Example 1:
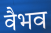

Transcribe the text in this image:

वैभव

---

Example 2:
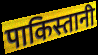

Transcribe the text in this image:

पाकिस्तानी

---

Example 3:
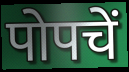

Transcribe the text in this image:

पोपचें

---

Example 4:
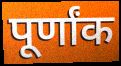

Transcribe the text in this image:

पूर्णांक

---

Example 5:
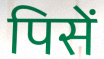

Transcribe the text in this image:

पिसें